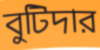
বুটিদার